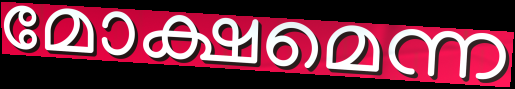
മോക്ഷമെന്ന